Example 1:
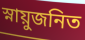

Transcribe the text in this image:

স্নায়ুজনিত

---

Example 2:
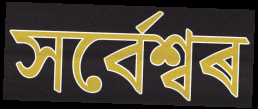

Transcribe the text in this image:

সৰ্বেশ্বৰ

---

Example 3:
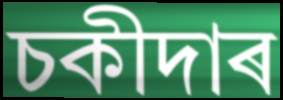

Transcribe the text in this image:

চকীদাৰ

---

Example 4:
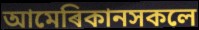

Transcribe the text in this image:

আমেৰিকানসকলে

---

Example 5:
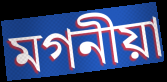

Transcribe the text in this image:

মগনীয়া